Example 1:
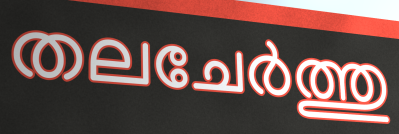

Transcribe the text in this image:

തലചേർത്തു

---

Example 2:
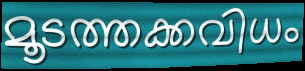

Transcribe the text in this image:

മൂടത്തക്കവിധം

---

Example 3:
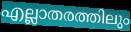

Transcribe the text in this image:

എല്ലാതരത്തിലും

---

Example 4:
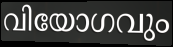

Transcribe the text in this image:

വിയോഗവും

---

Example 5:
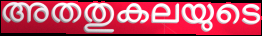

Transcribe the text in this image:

അതതുകലയുടെ